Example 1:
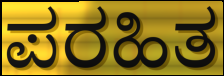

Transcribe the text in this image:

ಪರಹಿತ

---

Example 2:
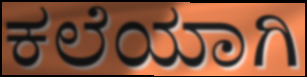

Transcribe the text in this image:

ಕಲೆಯಾಗಿ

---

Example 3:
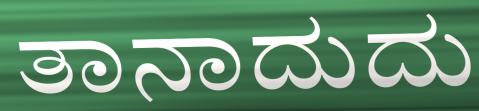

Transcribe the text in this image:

ತಾನಾದುದು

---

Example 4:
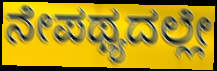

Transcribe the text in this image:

ನೇಪಥ್ಯದಲ್ಲೇ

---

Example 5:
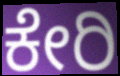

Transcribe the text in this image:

ಕೇರಿ